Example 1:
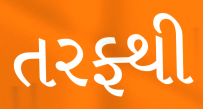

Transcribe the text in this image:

તરફ્થી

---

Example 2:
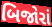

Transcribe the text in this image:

બિજોરાં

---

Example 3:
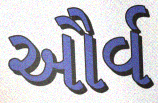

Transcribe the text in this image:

ઔર્વ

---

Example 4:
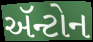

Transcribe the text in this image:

ઍન્ટોન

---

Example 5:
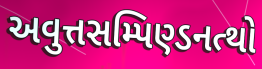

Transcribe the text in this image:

અવુત્તસમ્પિણ્ડનત્થો